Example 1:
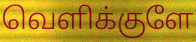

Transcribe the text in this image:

வெளிக்குளே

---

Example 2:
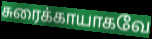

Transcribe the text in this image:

சுரைக்காயாகவே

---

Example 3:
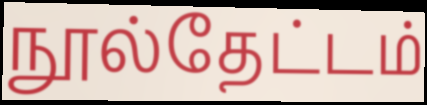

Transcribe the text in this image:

நூல்தேட்டம்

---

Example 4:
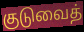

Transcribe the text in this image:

குடுவைத்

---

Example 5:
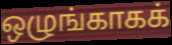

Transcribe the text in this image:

ஒழுங்காகக்